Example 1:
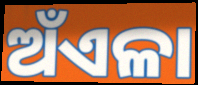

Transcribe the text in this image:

ଅଁଏଳା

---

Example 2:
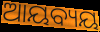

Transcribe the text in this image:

ଆୟବ୍ୟୟ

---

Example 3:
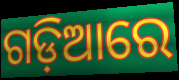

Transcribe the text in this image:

ଗଡ଼ିଆରେ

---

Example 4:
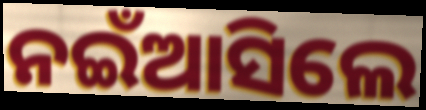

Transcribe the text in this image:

ନଇଁଆସିଲେ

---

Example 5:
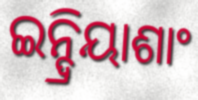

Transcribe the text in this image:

ଇନ୍ଦ୍ରିୟାଶାଂ